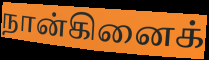
நான்கினைக்